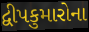
દ્વીપકુમારોના